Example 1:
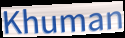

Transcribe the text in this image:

Khuman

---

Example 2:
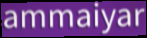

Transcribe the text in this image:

ammaiyar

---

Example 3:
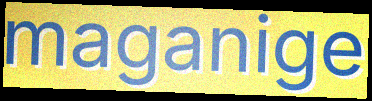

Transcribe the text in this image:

maganige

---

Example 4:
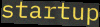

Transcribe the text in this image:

startup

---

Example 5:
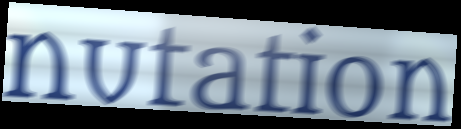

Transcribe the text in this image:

nutation